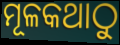
ମୂଳକଥାଠୁ